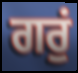
ਗਰੁਂ